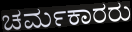
ಚರ್ಮಕಾರರು